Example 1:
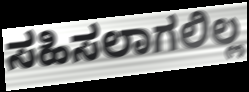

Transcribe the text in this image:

ಸಹಿಸಲಾಗಲಿಲ್ಲ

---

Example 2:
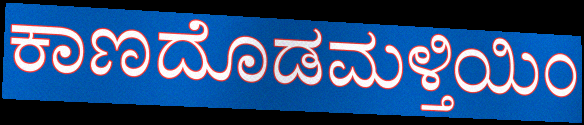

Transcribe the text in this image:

ಕಾಣದೊಡಮಳ್ತಿಯಿಂ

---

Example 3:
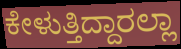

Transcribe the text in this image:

ಕೇಳುತ್ತಿದ್ದಾರಲ್ಲಾ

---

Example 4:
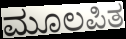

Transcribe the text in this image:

ಮೂಲಪಿತ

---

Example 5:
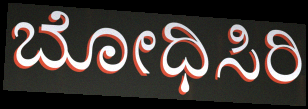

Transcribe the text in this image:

ಬೋಧಿಸಿರಿ